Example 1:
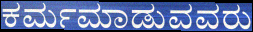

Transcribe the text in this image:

ಕರ್ಮಮಾಡುವವರು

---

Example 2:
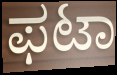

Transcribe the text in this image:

ಫಟಾ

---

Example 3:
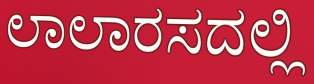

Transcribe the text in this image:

ಲಾಲಾರಸದಲ್ಲಿ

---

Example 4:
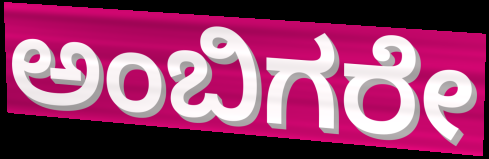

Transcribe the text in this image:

ಅಂಬಿಗರೇ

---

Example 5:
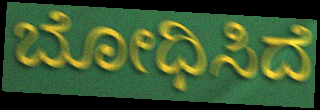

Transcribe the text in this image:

ಬೋಧಿಸಿದೆ